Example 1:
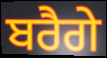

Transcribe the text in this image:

ਬਰੈਗੇ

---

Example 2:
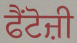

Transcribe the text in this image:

ਫੈਂਟੋਜ਼ੀ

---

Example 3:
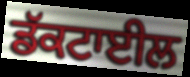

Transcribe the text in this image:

ਡੱਕਟਾਈਲ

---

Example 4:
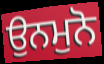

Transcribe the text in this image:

ਉਨਮੁਨੋ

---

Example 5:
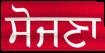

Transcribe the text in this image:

ਸੋਜਣਾ